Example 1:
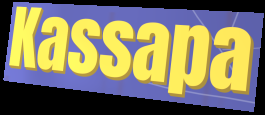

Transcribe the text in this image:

Kassapa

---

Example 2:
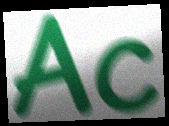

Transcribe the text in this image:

Ac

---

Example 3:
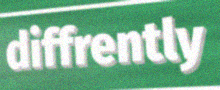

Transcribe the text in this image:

diffrently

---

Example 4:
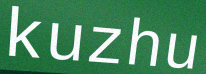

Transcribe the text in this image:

kuzhu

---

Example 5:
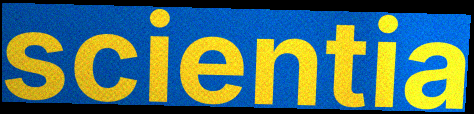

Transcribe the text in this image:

scientia